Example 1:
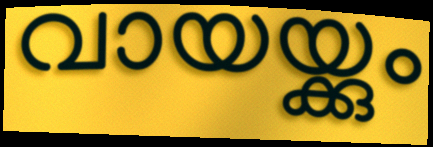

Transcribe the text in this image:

വായയ്ക്കും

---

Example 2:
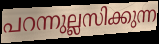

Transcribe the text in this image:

പറന്നുല്ലസിക്കുന്ന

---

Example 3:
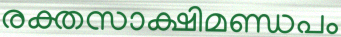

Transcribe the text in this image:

രക്തസാക്ഷിമണ്ഡപം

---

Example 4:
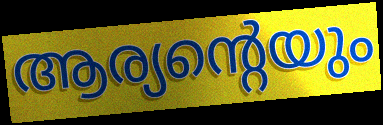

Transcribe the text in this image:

ആര്യന്റെയും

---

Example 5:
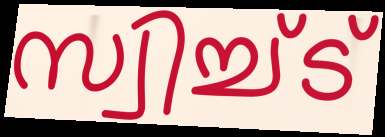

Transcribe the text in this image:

സ്വിച്ച്ട്